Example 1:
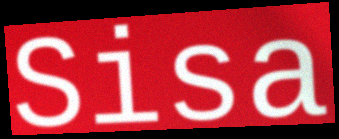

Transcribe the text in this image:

Sisa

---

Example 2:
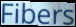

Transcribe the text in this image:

Fibers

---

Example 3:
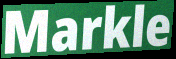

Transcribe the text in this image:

Markle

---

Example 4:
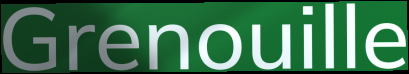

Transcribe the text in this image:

Grenouille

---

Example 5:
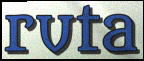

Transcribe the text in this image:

ruta